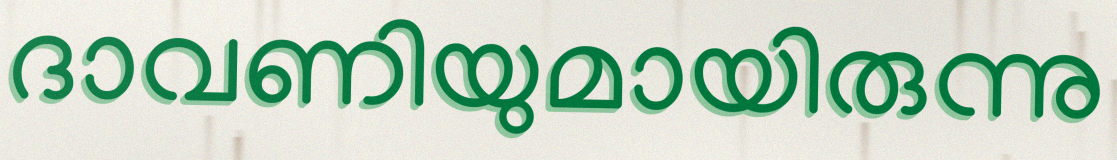
ദാവണിയുമായിരുന്നു